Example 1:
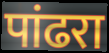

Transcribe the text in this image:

पांढरा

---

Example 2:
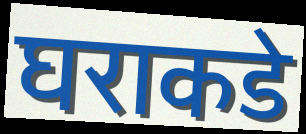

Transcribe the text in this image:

घराकडे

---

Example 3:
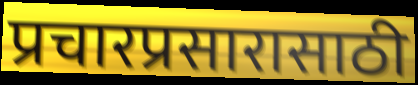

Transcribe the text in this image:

प्रचारप्रसारासाठी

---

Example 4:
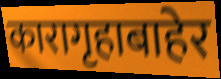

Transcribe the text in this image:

कारागृहाबाहेर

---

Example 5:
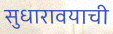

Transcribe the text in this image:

सुधारावयाची